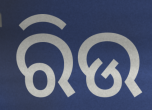
ରିଉ